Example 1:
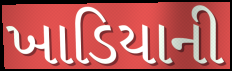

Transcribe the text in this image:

ખાડિયાની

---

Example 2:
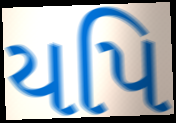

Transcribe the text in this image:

યપિ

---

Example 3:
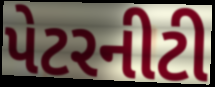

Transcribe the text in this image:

પેટરનીટી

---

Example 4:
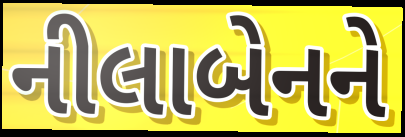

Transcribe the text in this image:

નીલાબેનને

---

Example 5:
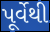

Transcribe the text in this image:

પૂર્વેથી